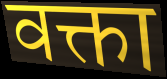
वक्ता